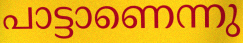
പാട്ടാണെന്നു